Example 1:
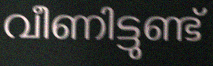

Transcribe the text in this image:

വീണിട്ടുണ്ട്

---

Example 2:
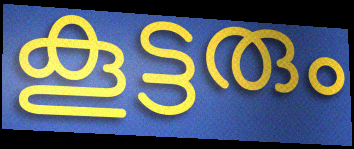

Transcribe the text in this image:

കൂട്ടരും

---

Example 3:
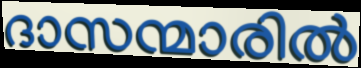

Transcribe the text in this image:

ദാസന്മാരിൽ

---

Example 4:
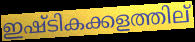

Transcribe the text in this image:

ഇഷ്ടികക്കളത്തില്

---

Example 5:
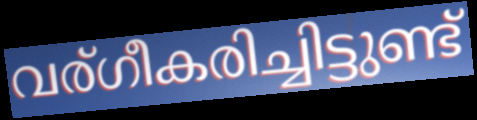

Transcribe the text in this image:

വര്ഗീകരിച്ചിട്ടുണ്ട്